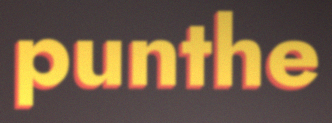
punthe